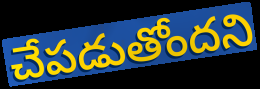
చేపడుతోందని